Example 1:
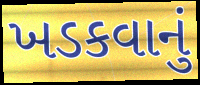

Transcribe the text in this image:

ખડકવાનું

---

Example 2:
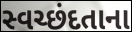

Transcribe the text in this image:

સ્વચ્છંદતાના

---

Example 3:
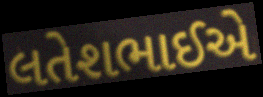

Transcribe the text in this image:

લતેશભાઈએ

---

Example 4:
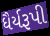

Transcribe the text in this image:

ધૈર્યરૂપી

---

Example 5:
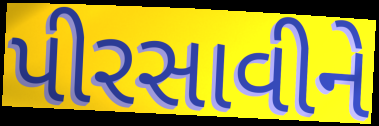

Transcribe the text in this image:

પીરસાવીને